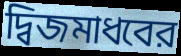
দ্বিজমাধবের